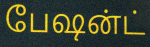
பேஷன்ட்